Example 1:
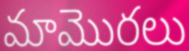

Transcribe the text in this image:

మామొరలు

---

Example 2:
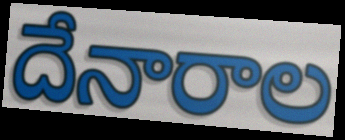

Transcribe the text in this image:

దేనారాల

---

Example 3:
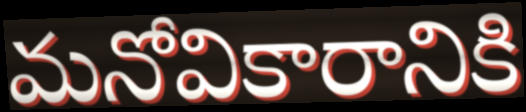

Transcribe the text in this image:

మనోవికారానికి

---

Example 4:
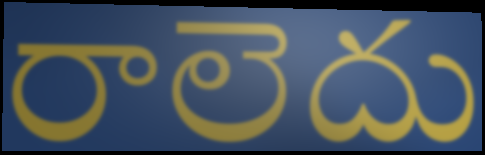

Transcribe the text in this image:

రాలెదు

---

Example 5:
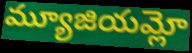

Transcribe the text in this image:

మ్యూజియమ్లో